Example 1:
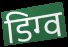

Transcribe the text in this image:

डिग्व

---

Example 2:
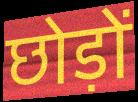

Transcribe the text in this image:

छोड़ों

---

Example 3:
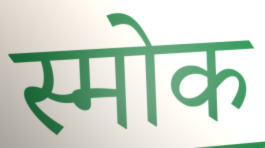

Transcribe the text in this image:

स्मोक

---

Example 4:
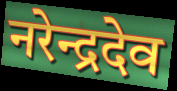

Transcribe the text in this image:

नरेन्द्रदेव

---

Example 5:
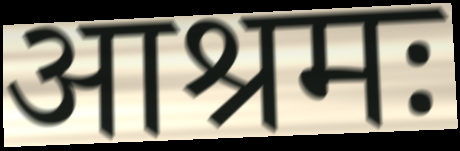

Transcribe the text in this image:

आश्रमः